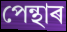
পেন্থাৰ